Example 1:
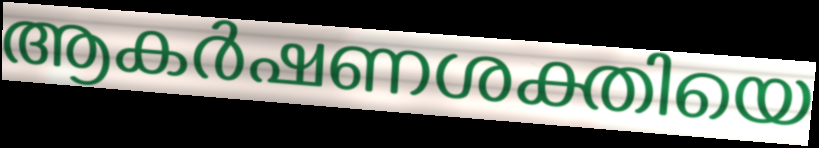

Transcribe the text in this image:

ആകർഷണശക്തിയെ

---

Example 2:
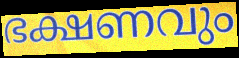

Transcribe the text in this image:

ഭക്ഷണവും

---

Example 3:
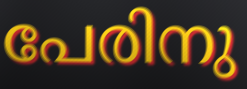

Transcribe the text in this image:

പേരിനു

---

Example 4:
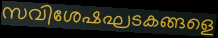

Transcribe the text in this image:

സവിശേഷഘടകങ്ങളെ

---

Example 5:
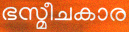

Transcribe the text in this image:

ഭസ്മീചകാര